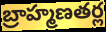
బ్రాహ్మణతర్ల